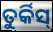
ତୁର୍କିସ୍